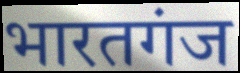
भारतगंज